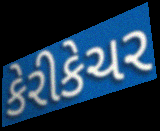
કેરીકેચર